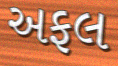
અફલ